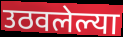
उठवलेल्या